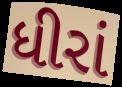
ધીરાં